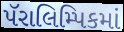
પૅરાલિમ્પિકમાં